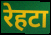
रेहटा